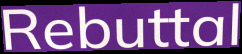
Rebuttal